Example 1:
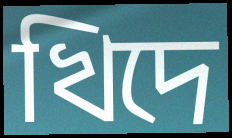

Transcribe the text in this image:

খিদে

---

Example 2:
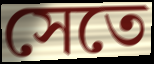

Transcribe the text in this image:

সেতে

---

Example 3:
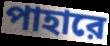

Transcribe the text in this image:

পাহারে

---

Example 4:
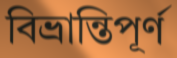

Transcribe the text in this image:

বিভ্রান্তিপূর্ণ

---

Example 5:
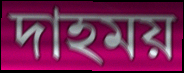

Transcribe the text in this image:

দাহময়